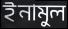
ইনামুল